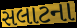
સલાટના